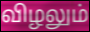
விழலும்